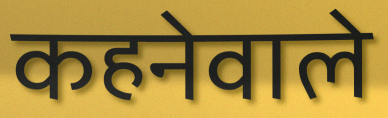
कहनेवाले